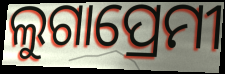
ଲୁଗାପ୍ରେମୀ